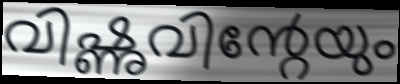
വിഷ്ണുവിന്റേയും